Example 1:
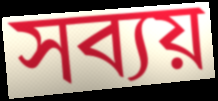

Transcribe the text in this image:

সব্যয়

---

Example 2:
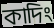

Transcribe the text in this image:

কাদিং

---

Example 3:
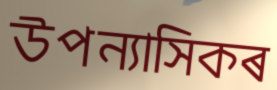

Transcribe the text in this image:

উপন্যাসিকৰ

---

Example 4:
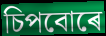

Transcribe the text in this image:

চিপবোৰে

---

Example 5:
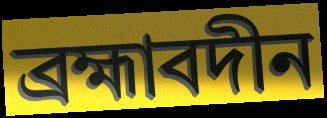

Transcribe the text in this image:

ব্ৰহ্মাবদীন